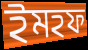
ইমহফ